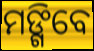
ମଙ୍ଗିବେ